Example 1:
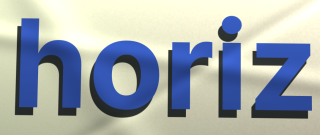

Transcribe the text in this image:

horiz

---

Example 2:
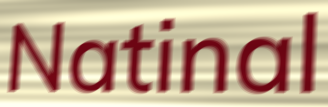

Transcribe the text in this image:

Natinal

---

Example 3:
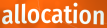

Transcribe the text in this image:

allocation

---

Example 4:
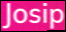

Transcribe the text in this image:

Josip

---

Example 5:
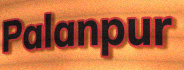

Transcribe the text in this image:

Palanpur